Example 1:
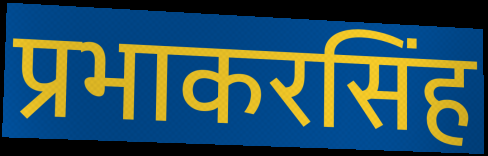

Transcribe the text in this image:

प्रभाकरसिंह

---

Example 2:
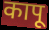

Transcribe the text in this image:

कापू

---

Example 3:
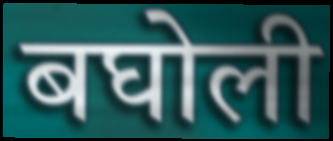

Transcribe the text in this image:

बघोली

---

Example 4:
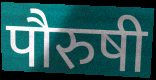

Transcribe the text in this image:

पौरुषी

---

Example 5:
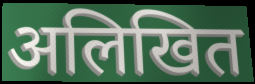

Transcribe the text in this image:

अलिखित